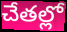
చేతల్లో